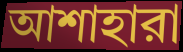
আশাহারা